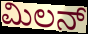
ಮಿಲನ್